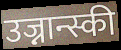
उज्नान्स्की